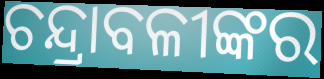
ଚନ୍ଦ୍ରାବଳୀଙ୍କର